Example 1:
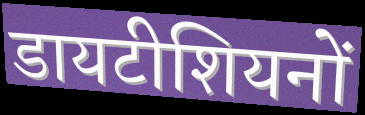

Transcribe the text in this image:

डायटीशियनों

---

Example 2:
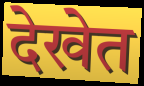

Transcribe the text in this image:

देखेत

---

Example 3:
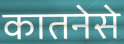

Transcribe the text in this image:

कातनेसे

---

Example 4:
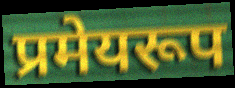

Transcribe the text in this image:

प्रमेयरूप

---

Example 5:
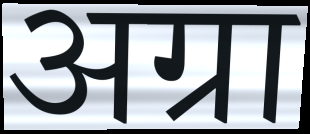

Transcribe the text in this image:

अग्रा